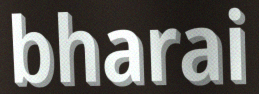
bharai